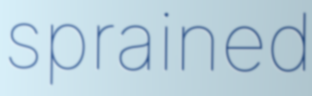
sprained